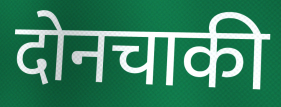
दोनचाकी